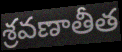
శ్రవణాతీత